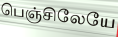
பெஞ்சிலேயே